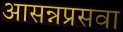
आसन्नप्रसवा